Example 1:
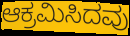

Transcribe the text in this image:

ಆಕ್ರಮಿಸಿದವು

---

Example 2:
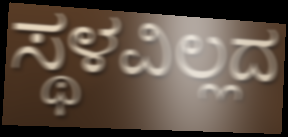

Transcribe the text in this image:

ಸ್ಥಳವಿಲ್ಲದ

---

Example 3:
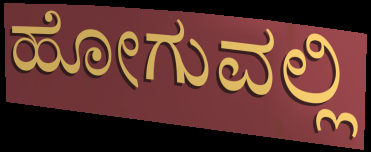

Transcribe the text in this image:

ಹೋಗುವಲ್ಲಿ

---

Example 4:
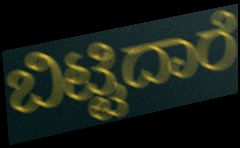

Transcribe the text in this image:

ಬಿಟ್ಟಿದಾರೆ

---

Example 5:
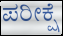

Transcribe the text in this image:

ಪರೀಕ್ಷೆ